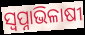
ସ୍ଵପ୍ନାଭିଳାଷୀ